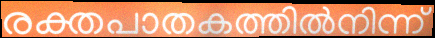
രക്തപാതകത്തിൽനിന്ന്